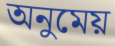
অনুমেয়